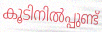
കൂടിനിൽപ്പുണ്ട്